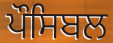
ਪੌਸਿਬਲ